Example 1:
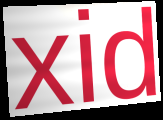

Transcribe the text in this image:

xid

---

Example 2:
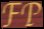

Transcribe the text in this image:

FP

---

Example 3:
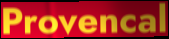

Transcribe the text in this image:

Provencal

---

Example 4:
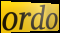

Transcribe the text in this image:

ordo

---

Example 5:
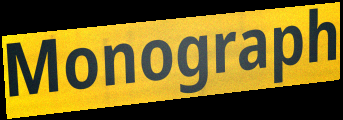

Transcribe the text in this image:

Monograph